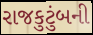
રાજકુટુંબની